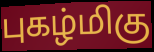
புகழ்மிகு